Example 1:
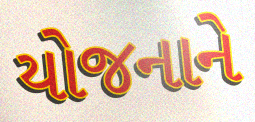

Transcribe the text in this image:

યોજનાને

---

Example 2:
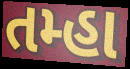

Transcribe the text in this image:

તમ્હા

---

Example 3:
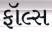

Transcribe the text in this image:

ફૉલ્સ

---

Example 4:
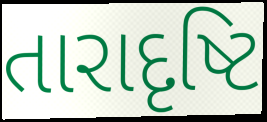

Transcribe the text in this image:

તારાદૃષ્ટિ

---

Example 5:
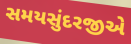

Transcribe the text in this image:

સમયસુંદરજીએ